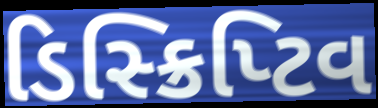
ડિસ્ક્રિપ્ટિવ